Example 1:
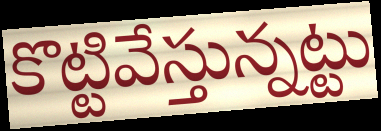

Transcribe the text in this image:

కొట్టివేస్తున్నట్టు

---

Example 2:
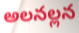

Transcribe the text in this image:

అలనల్లన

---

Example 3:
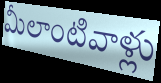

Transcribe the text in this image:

మీలాంటివాళ్లు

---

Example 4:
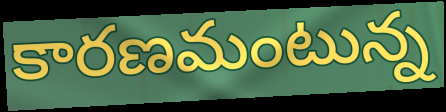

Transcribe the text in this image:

కారణమంటున్న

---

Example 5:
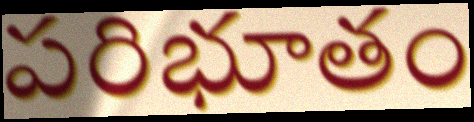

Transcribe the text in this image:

పరిభూతం